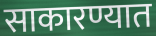
साकारण्यात